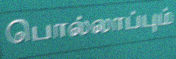
பொல்லாப்பும்